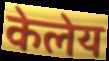
केलेय